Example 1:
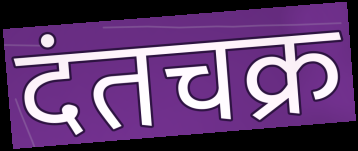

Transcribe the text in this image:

दंतचक्र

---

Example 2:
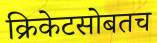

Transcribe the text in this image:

क्रिकेटसोबतच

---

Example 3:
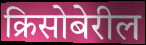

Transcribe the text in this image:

क्रिसोबेरील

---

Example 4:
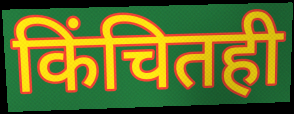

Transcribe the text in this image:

किंचितही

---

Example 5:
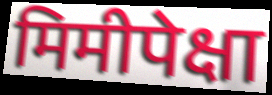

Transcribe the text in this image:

मिमीपेक्षा